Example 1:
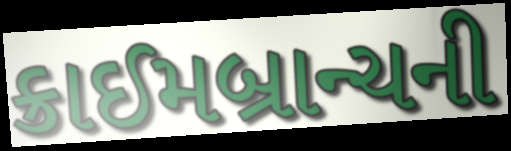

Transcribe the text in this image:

ક્રાઈમબ્રાન્ચની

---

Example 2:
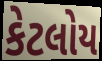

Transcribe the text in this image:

કેટલોય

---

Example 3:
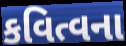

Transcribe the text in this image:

કવિત્વના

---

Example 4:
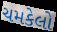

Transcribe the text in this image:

ચમકેલો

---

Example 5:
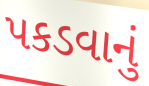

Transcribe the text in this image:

પકડવાનું